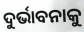
ଦୁର୍ଭାବନାକୁ